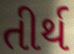
તીર્થ